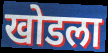
खोडला